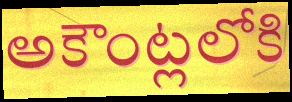
అకౌంట్లలోకి